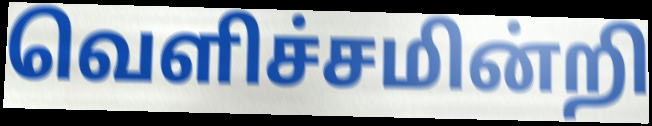
வெளிச்சமின்றி